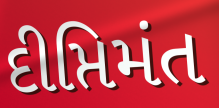
દીપ્તિમંત